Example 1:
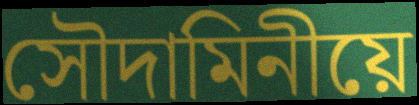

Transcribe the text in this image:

সৌদামিনীয়ে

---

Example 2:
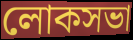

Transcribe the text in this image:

লোকসভা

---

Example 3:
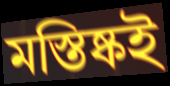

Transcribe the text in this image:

মস্তিষ্কই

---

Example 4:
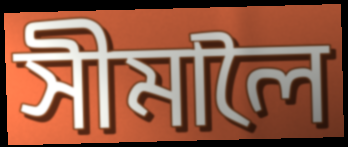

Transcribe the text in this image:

সীমালৈ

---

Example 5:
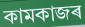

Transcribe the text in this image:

কামকাজৰ